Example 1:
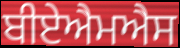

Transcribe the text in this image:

ਬੀਏਐਮਐਸ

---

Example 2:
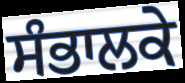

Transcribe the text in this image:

ਸੰਭਾਲਕੇ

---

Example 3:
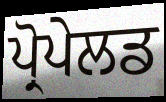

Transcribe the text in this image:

ਪ੍ਰੋਪੇਲਡ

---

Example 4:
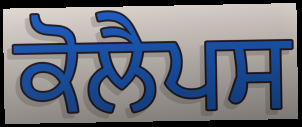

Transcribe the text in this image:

ਕੋਲੈਪਸ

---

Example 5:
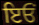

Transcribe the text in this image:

ਇਓਂ